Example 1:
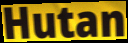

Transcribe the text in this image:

Hutan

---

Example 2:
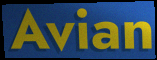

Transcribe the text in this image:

Avian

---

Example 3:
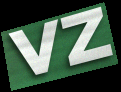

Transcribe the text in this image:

vz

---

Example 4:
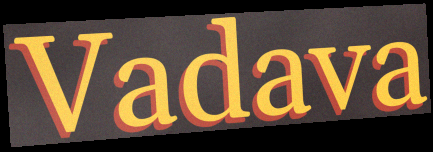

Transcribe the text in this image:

Vadava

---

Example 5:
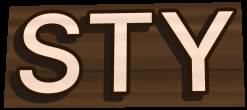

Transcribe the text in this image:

STY